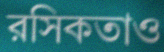
রসিকতাও